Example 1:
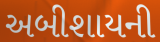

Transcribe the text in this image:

અબીશાયની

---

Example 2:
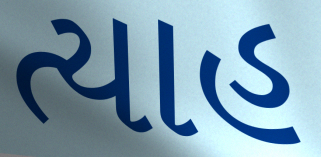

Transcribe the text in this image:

ત્યાહ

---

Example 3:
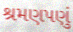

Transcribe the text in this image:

શ્રમણપણું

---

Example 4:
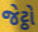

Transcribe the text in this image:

જેટ્ઠો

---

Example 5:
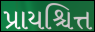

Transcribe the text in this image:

પ્રાયશ્ચિત્ત